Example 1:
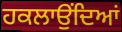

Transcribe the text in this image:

ਹਕਲਾਉਂਦਿਆਂ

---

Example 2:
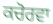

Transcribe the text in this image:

ਕਚੋਰਵਾ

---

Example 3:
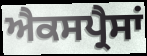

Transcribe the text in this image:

ਐਕਸਪ੍ਰੈਸਾਂ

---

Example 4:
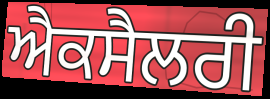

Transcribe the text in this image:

ਐਕਸੈਲਰੀ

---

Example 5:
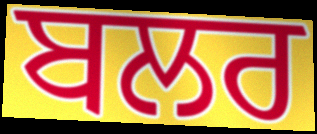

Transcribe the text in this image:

ਬਲਰ